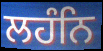
ਲਹੰਨਿ